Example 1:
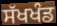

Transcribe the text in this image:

ਸੱਖਖੰਡ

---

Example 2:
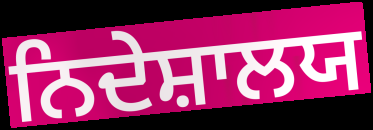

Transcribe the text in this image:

ਨਿਦੇਸ਼ਾਲਯ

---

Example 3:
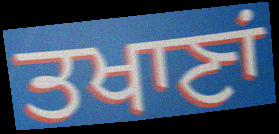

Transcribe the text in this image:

ਤਖਾਣਾਂ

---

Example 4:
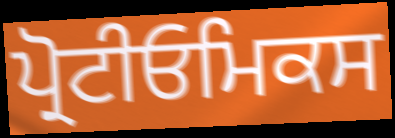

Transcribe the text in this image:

ਪ੍ਰੋਟੀਓਮਿਕਸ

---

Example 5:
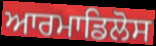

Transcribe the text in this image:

ਆਰਮਾਡਿਲੋਸ